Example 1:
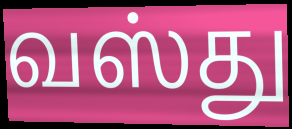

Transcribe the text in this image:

வஸ்து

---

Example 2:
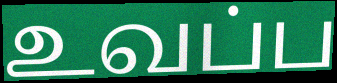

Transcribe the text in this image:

உவப்ப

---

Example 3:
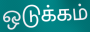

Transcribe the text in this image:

ஒடுக்கம்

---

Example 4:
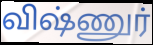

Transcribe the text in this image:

விஷ்ணுர்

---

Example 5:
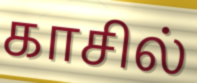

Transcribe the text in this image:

காசில்